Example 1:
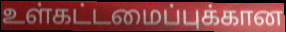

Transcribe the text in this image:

உள்கட்டமைப்புக்கான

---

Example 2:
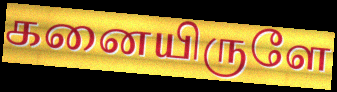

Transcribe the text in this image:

கனையிருளே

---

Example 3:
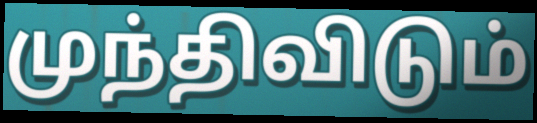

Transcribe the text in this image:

முந்திவிடும்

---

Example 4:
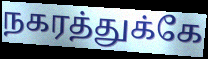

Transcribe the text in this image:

நகரத்துக்கே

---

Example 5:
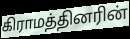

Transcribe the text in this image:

கிராமத்தினரின்